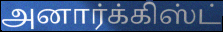
அனார்க்கிஸ்ட்